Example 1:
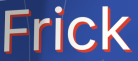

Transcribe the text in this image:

Frick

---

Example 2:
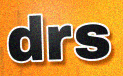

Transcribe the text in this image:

drs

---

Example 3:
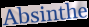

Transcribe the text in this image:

Absinthe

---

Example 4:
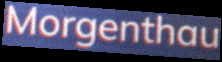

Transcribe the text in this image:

Morgenthau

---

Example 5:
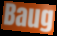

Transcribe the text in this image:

Baug